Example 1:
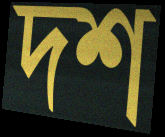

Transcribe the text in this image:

দশ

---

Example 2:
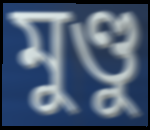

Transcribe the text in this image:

মুণ্ডু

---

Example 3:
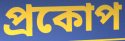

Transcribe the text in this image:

প্ৰকোপ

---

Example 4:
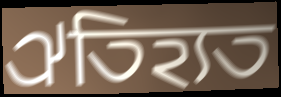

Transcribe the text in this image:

ঐতিহ্যত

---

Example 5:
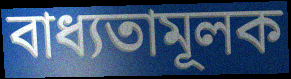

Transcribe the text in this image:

বাধ্যতামূলক